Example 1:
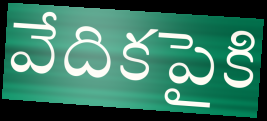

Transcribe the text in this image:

వేదికపైకి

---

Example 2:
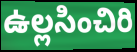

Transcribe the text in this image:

ఉల్లసించిరి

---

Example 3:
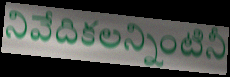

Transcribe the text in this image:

నివేదికలన్నింటినీ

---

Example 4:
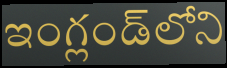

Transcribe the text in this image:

ఇంగ్లండ్‌లోని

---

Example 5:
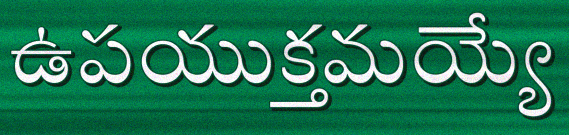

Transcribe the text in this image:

ఉపయుక్తమయ్యే